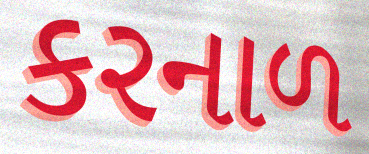
કરનાળ